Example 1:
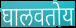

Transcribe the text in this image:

घालवतोय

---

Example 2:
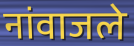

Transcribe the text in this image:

नांवाजले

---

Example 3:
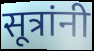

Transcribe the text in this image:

सूत्रांनी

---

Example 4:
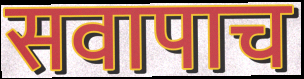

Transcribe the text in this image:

सवापाच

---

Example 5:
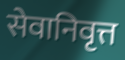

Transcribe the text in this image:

सेवानिवृत्त